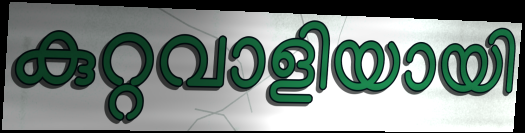
കുറ്റവാളിയായി